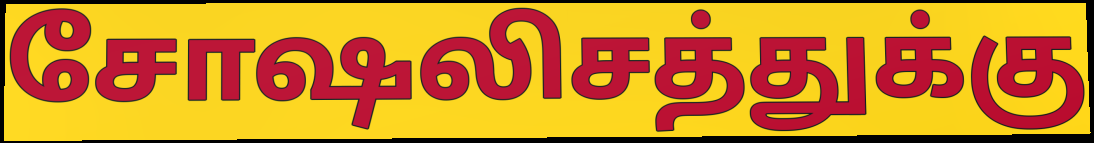
சோஷலிசத்துக்கு